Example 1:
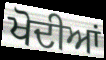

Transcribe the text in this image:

ਖੋਦੀਆਂ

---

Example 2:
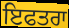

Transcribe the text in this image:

ਇਫਤਰਾ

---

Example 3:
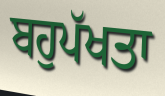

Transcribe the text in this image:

ਬਹੁਪੱਖਤਾ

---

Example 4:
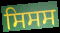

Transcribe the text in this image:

ਸਿਸਸ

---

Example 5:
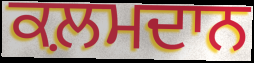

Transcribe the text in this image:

ਕ਼ਲਮਦਾਨ